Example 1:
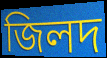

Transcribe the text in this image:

জিলদ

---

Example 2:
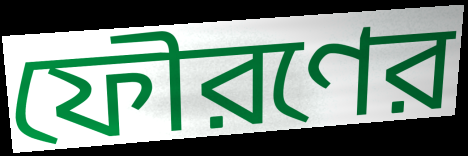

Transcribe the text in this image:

ফৌরণের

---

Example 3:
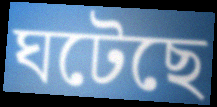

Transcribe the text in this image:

ঘটেছে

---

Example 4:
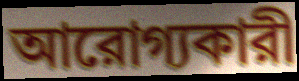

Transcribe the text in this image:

আরোগ্যকারী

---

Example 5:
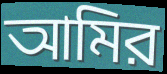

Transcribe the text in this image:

আমির